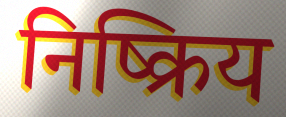
निष्क्रिय